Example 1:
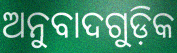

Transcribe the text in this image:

ଅନୁବାଦଗୁଡ଼ିକ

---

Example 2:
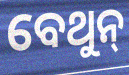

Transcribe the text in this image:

ବେଥୁନ୍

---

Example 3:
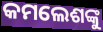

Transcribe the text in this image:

କମଲେଶଙ୍କୁ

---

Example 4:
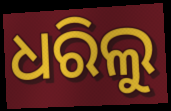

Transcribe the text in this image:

ଧରିଲୁ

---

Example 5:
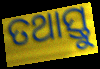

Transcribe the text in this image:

ତଥାସ୍ତୁ